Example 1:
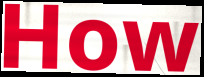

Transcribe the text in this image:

How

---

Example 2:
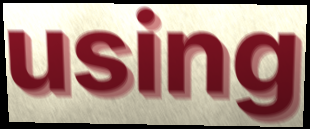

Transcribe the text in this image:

using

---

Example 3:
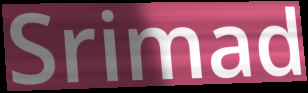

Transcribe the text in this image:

Srimad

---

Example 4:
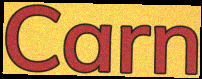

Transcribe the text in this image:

Carn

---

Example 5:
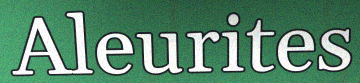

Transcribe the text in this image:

Aleurites